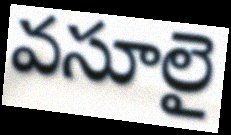
వసూలై